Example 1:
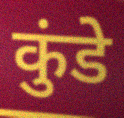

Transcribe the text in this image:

कुंडे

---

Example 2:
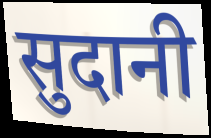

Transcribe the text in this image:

सुदानी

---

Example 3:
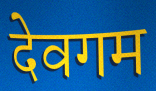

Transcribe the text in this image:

देवगम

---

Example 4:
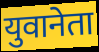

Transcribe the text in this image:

युवानेता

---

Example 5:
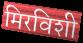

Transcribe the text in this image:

मिरविशी